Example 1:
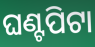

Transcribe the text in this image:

ଘଣ୍ଟପିଟା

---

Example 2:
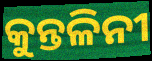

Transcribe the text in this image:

କୁନ୍ତଳିନୀ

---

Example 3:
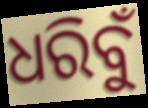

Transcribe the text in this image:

ଧରିବୁଁ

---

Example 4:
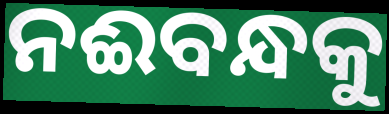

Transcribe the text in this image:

ନଈବନ୍ଧକୁ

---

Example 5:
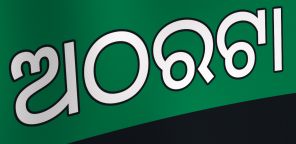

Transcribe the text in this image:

ଅଠରଟା